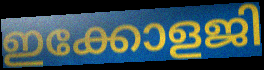
ഇക്കോളജി